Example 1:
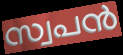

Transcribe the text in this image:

സ്വപൻ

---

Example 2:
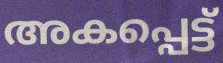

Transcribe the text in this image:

അകപ്പെട്ട്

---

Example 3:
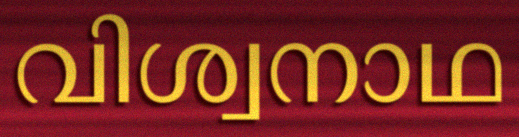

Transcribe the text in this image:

വിശ്വനാഥ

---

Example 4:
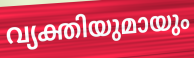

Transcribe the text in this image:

വ്യക്തിയുമായും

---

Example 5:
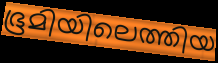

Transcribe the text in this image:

ഭൂമിയിലെത്തിയ